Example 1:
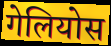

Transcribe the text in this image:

गेलियोस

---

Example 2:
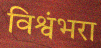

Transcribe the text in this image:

विश्वंभरा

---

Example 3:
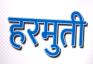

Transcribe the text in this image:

हरमुती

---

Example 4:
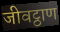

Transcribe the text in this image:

जीवट्ठाण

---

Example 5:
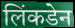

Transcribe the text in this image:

लिंकडेन